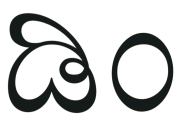
ಡಿಂ